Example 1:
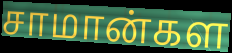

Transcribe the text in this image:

சாமான்கள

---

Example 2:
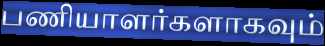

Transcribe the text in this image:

பணியாளர்களாகவும்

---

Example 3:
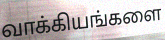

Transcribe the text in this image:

வாக்கியங்களை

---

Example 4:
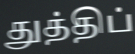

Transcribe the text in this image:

துத்திப்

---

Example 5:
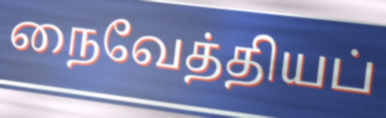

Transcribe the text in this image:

நைவேத்தியப்